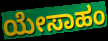
ಯೇಸಾಹಂ